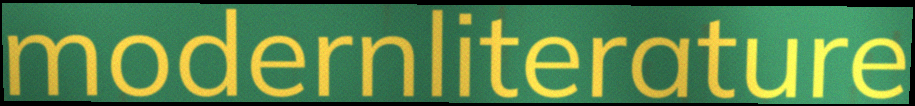
modernliterature